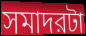
সমাদরটা